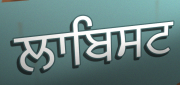
ਲਾਬਿਸਟ